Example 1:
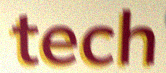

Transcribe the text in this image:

tech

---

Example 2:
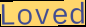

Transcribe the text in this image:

Loved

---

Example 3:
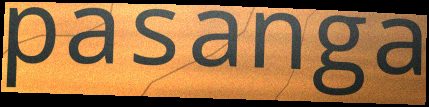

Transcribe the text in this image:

pasanga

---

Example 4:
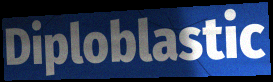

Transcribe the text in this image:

Diploblastic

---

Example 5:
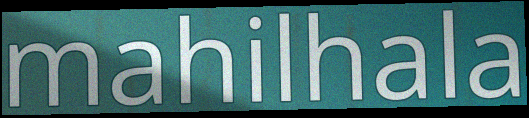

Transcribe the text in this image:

mahilhala